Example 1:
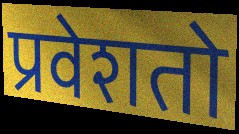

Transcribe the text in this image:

प्रवेशतो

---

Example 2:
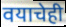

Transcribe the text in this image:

वयाचेही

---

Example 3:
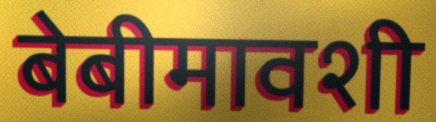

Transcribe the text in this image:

बेबीमावशी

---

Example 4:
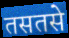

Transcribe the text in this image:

तसतसे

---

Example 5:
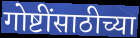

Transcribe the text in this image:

गोष्टींसाठीच्या